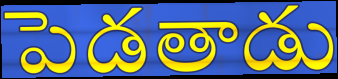
పెడతాడు